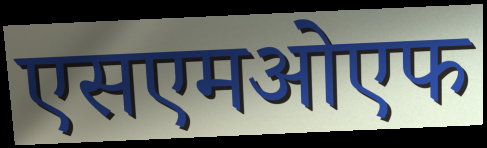
एसएमओएफ